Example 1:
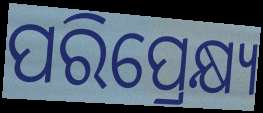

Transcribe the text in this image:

ପରିପ୍ରେକ୍ଷ୍ୟ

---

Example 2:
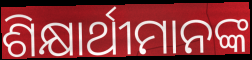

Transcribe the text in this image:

ଶିକ୍ଷାର୍ଥୀମାନଙ୍କ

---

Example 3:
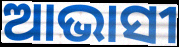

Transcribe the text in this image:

ଆଭାସୀ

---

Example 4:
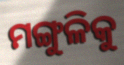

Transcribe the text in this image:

ମଙ୍ଗୁଳିକୁ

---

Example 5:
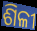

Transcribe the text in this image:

ଶିଳୀ